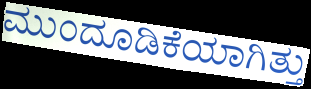
ಮುಂದೂಡಿಕೆಯಾಗಿತ್ತು